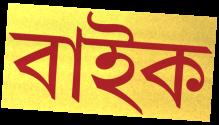
বাইক